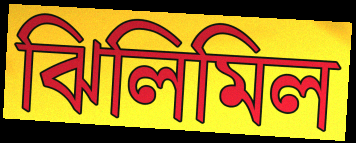
ঝিলিমিল